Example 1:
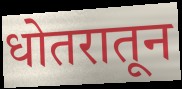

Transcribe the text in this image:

धोतरातून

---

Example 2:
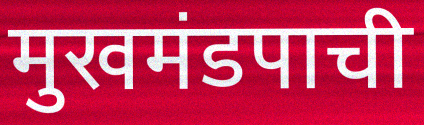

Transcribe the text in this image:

मुखमंडपाची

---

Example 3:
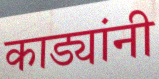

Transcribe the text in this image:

काड्यांनी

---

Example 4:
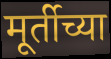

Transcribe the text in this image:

मूर्तीच्या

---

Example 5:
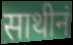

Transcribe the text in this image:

साथीनं